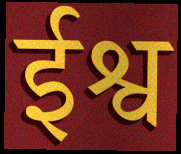
ईश्व